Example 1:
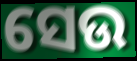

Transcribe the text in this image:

ସେଉ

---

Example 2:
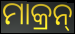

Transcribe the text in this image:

ମାକ୍ରନ୍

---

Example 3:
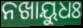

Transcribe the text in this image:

ନଖାୟୁଧଃ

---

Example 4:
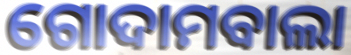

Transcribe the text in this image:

ଗୋଦାମବାଲା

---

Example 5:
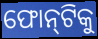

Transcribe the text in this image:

ଫୋନ୍‌ଟିକୁ